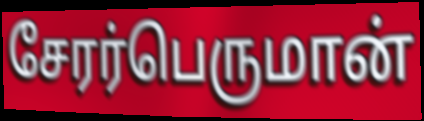
சேரர்பெருமான்